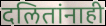
दलितांनाही